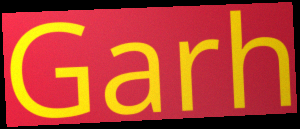
Garh